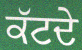
ਕੱਟਦੇ